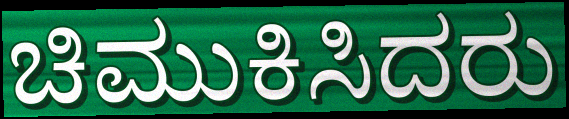
ಚಿಮುಕಿಸಿದರು